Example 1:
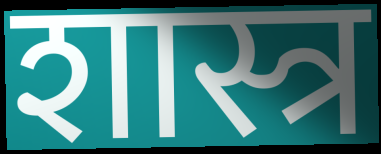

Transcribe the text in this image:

शास्त्र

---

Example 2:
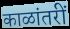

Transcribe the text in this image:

काळांतरीं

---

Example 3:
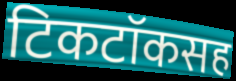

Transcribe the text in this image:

टिकटॉकसह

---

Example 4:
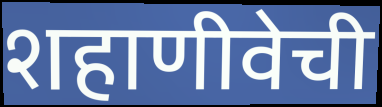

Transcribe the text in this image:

शहाणीवेची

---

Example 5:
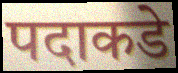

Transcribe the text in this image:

पदाकडे